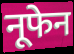
नूफेन